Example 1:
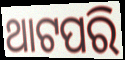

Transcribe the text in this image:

ଥାଟପରି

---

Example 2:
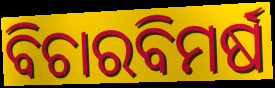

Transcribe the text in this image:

ବିଚାରବିମର୍ଷ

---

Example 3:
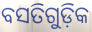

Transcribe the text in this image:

ବସତିଗୁଡ଼ିକ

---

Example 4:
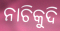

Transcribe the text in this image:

ନାଚିକୁଦି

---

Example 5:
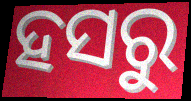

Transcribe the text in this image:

ହସରୁ